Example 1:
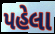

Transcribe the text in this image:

પહેલા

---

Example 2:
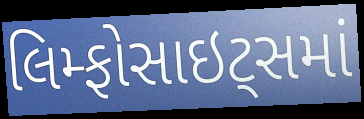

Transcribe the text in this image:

લિમ્ફોસાઇટ્સમાં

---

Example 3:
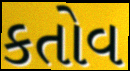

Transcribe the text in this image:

કતોવ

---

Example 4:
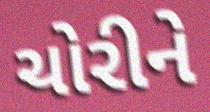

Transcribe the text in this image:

ચોરીને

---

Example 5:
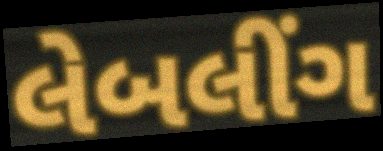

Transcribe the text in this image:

લેબલીંગ